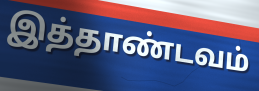
இத்தாண்டவம்